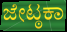
ಜೇಟ್ಠಕಾ